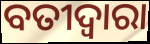
ବତୀଦ୍ୱାରା